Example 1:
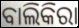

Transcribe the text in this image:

ବାଲିକିରା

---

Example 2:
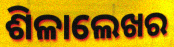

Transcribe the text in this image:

ଶିଳାଲେଖର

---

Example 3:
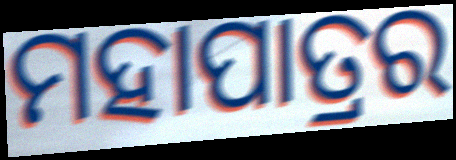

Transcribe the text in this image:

ମହାପାତ୍ରର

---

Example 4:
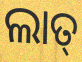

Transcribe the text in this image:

ଲାତ୍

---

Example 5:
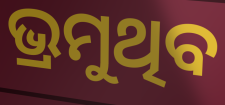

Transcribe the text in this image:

ଭ୍ରମୁଥିବ